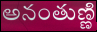
అనంతుణ్ణి